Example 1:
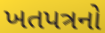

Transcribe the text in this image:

ખતપત્રનો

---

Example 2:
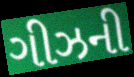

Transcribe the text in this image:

ગીઝની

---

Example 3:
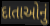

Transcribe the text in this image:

દાતાઓનું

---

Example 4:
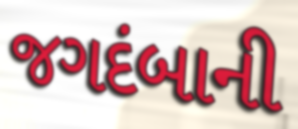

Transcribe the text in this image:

જગદંબાની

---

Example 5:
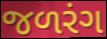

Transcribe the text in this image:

જળરંગ